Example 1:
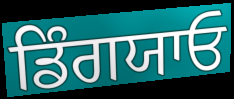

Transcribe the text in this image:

ਡਿੰਗਯਾਓ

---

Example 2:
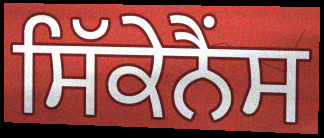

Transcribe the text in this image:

ਸਿੱਕੇਨੈਂਸ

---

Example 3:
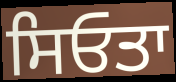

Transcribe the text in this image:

ਸਿਓਤਾ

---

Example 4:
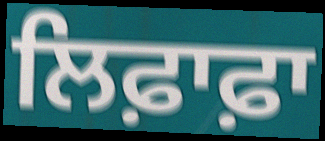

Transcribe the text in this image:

ਲਿਫ਼ਾਫ਼ਾ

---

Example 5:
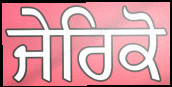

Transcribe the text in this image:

ਜੇਰਿਕੋ